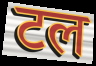
टल